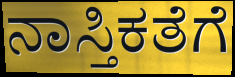
ನಾಸ್ತಿಕತೆಗೆ